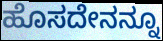
ಹೊಸದೇನನ್ನೂ